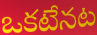
ఒకటేనట